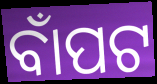
ବାଁପଟ